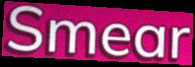
Smear